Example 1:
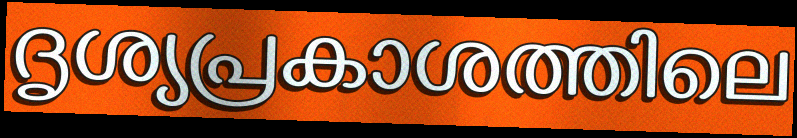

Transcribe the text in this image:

ദൃശ്യപ്രകാശത്തിലെ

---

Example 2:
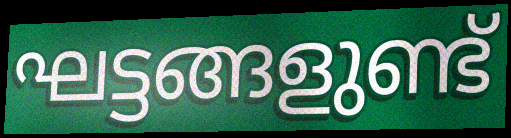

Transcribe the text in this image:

ഘട്ടങ്ങളുണ്ട്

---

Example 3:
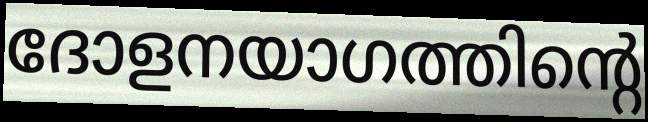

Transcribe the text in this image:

ദോളനയാഗത്തിന്റെ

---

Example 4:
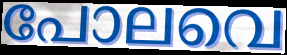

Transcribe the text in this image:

പോലവെ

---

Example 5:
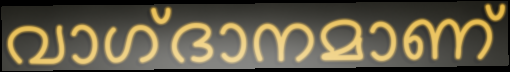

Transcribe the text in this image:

വാഗ്‌ദാനമാണ്